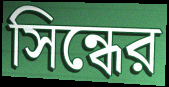
সিন্ধের